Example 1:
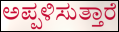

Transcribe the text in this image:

ಅಪ್ಪಳಿಸುತ್ತಾರೆ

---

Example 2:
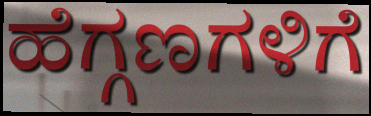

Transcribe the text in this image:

ಹೆಗ್ಗಣಗಳಿಗೆ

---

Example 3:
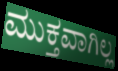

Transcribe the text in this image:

ಮುಕ್ತವಾಗಿಲ್ಲ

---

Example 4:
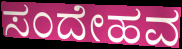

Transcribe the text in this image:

ಸಂದೇಹವ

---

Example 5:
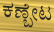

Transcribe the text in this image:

ಕಣ್ಬೇಟ